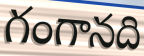
గంగానది